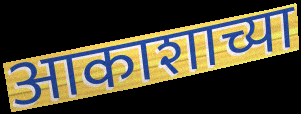
आकाशाच्या